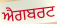
ਐਗਬਰਟ